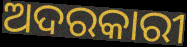
ଅଦରକାରୀ